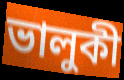
ভালুকী